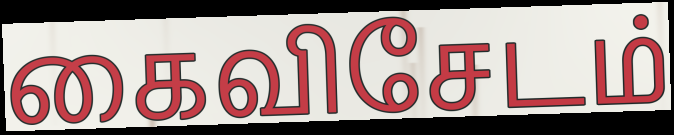
கைவிசேடம்